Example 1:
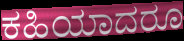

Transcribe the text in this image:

ಕಹಿಯಾದರೂ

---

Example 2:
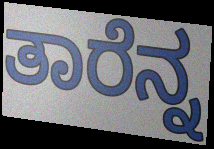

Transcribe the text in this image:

ತಾರೆನ್ನ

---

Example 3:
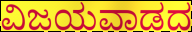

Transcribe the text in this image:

ವಿಜಯವಾಡದ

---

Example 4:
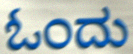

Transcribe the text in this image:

ಓಂದು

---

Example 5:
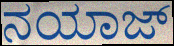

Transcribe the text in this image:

ನಯಾಜ್